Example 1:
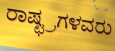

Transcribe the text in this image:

ರಾಷ್ಟ್ರಗಳವರು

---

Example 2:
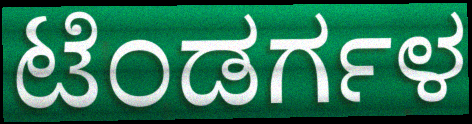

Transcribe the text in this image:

ಟೆಂಡರ್ಗಳ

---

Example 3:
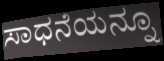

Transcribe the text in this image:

ಸಾಧನೆಯನ್ನೂ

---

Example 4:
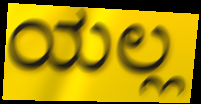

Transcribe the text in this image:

ಯಲ್ಲ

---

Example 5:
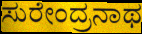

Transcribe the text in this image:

ಸುರೇಂದ್ರನಾಥ